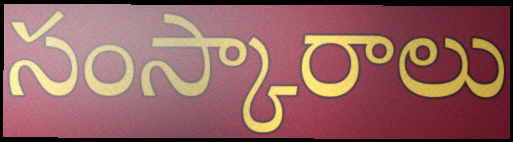
సంస్కారాలు